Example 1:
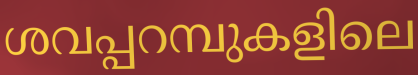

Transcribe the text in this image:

ശവപ്പറമ്പുകളിലെ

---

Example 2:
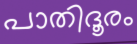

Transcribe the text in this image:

പാതിദൂരം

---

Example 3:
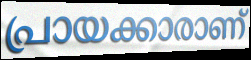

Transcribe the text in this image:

പ്രായക്കാരാണ്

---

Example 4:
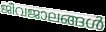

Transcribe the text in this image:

ജീവജാലങ്ങൾ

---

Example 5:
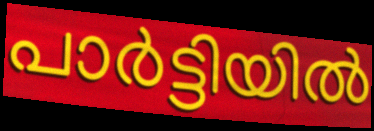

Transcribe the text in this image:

പാർട്ടിയിൽ